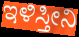
ಇಳಿಸ್ತೀನಿ